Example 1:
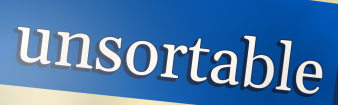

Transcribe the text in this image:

unsortable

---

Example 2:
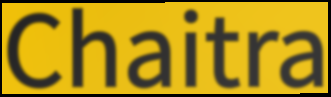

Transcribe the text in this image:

Chaitra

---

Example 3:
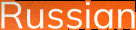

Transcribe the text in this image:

Russian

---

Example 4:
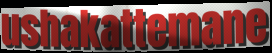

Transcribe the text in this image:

ushakattemane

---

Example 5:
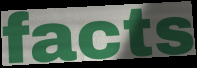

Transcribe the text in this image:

facts